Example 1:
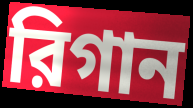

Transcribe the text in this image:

রিগান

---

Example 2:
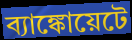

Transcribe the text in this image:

ব্যাঙ্কোয়েটে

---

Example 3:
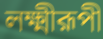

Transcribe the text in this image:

লক্ষ্মীরূপী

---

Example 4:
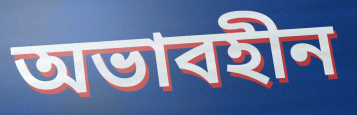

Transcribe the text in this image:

অভাবহীন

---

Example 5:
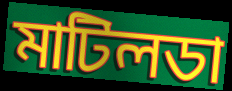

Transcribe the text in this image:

মাটিলডা